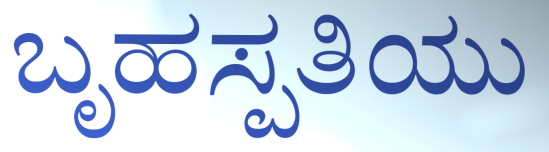
ಬೃಹಸ್ಪತಿಯು